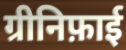
ग्रीनिफ़ाई